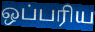
ஒப்பரிய